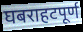
घबराहटपूर्ण